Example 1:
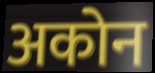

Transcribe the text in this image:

अकोन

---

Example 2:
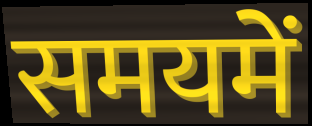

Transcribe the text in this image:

समयमें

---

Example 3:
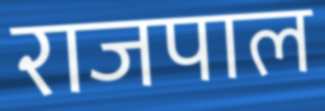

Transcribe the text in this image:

राजपाल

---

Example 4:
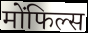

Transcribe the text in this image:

मोंफिल्स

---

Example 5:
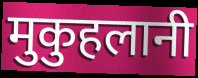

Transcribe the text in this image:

मुकुहलानी